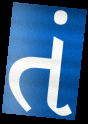
તં